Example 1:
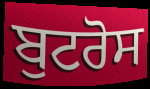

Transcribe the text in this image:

ਬੁਟਰੋਸ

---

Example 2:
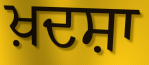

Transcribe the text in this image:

ਖ਼ਦਸ਼ਾ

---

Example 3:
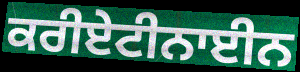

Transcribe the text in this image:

ਕਰੀਏਟੀਨਾਈਨ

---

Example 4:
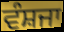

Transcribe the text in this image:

ਵੰਸ਼ਜਾ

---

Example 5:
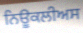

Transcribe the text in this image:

ਨਿਊਕਲੀਅਸ